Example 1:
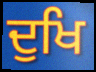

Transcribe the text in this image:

ਦੁਖਿ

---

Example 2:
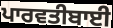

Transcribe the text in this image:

ਪਾਰਵਤੀਬਾਈ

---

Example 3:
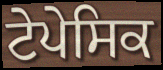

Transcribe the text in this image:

ਟੇਪੇਸਿਕ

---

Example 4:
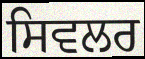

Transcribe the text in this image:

ਸਿਵਲਰ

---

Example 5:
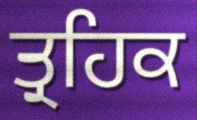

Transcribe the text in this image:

ਤ੍ਰਹਿਕ